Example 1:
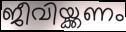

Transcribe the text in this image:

ജീവിയ്ക്കണം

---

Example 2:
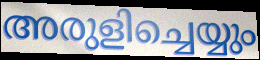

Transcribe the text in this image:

അരുളിച്ചെയ്യും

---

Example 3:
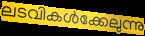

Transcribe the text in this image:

ലടവികൾക്കേലുന്നു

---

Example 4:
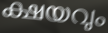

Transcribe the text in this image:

ക്ഷയവും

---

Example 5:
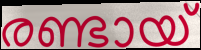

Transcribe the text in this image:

രണ്ടായ്